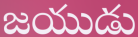
జయుడు